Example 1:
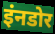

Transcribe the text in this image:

इंनडोर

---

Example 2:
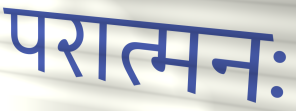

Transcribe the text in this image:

परात्मनः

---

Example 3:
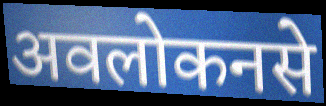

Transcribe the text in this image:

अवलोकनसे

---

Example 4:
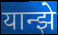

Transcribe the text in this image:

यान्झे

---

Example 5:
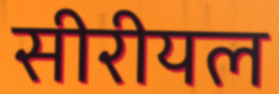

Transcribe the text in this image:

सीरीयल